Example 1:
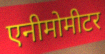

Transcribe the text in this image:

एनीमोमीटर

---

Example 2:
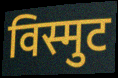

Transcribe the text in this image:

विस्मुट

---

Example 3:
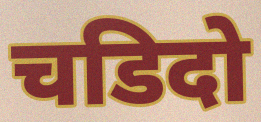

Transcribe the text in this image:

चडिदो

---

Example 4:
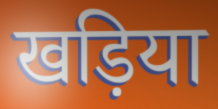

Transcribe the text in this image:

खड़िया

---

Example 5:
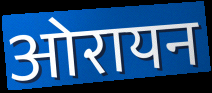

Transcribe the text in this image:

ओरायन